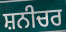
ਸ਼ਨੀਚਰ